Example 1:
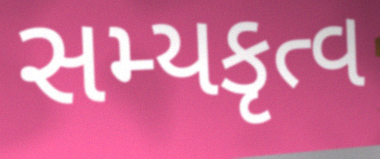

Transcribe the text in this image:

સમ્યકૃત્વ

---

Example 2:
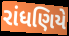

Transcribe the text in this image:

રાંધણિયે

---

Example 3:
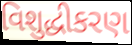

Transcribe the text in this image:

વિશુદ્ધીકરણ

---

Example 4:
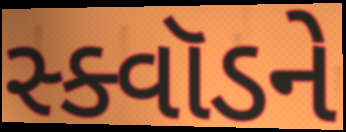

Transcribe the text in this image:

સ્ક્વૉડને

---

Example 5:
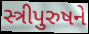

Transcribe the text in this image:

સ્ત્રીપુરુષને